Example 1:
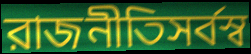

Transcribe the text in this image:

রাজনীতিসর্বস্ব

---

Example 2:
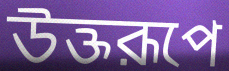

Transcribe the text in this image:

উক্তরূপে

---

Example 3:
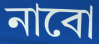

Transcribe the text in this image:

নাবো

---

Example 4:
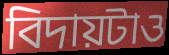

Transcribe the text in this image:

বিদায়টাও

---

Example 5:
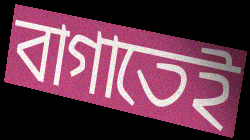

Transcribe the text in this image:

বাগাতেই